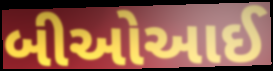
બીઓઆઈ